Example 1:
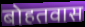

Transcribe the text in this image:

बोहतवास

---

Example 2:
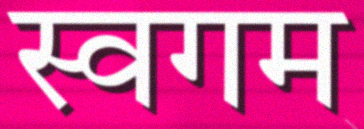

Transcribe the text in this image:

स्वगम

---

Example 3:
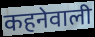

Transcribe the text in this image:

कहनेवाली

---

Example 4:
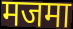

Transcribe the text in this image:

मजमा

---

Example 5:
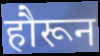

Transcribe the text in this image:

हौरून